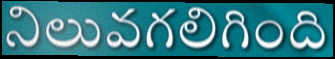
నిలువగలిగింది